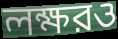
লক্ষরও